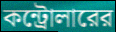
কন্ট্রোলারের